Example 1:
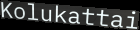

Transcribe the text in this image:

Kolukattai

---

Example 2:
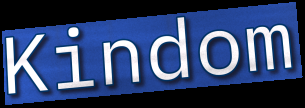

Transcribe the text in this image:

Kindom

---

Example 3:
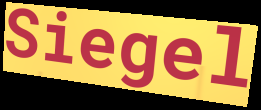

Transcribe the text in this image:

Siegel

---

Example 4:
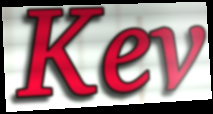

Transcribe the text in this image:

Kev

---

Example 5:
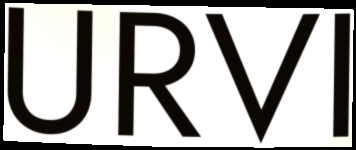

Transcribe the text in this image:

URVI